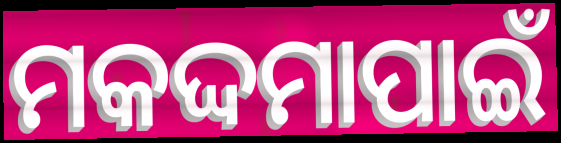
ମକଦ୍ଦମାପାଇଁ